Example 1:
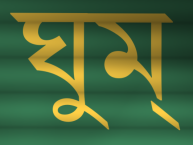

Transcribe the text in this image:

ঘুম্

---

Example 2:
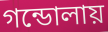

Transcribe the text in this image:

গন্ডোলায়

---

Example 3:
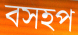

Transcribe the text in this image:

বসহপ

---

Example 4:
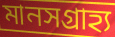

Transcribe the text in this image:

মানসগ্রাহ্য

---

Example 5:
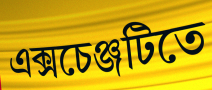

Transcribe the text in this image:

এক্সচেঞ্জটিতে